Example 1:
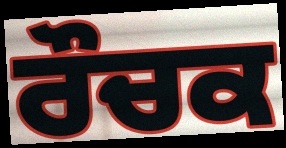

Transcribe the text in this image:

ਰੌਚਕ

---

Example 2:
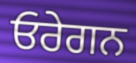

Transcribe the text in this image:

ਓਰੇਗਨ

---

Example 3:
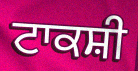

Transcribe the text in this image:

ਟਾਕਸ਼ੀ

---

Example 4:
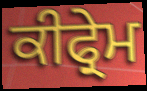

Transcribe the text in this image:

ਕੀਫ੍ਰੇਮ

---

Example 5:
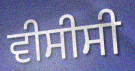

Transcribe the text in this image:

ਵੀਸੀਸੀ